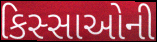
કિસ્સાઓની